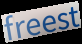
freest